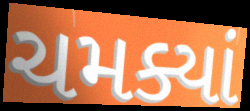
ચમક્યાં